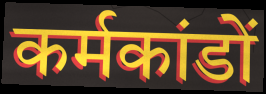
कर्मकांडों